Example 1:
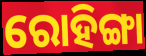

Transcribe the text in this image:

ରୋହିଙ୍ଗା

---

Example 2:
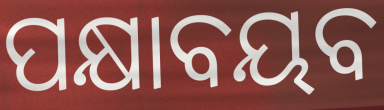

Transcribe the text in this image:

ପକ୍ଷାବୟବ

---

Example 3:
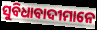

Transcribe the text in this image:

ସୁବିଧାବାଦୀମାନେ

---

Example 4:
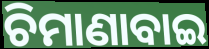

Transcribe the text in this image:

ଚିମାଣାବାଇ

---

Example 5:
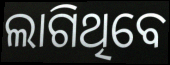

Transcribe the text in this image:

ଲାଗିଥିବେ